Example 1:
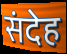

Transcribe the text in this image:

संदेह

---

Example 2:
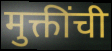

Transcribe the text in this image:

मुक्तींची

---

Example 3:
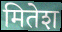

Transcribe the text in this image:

मितेश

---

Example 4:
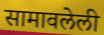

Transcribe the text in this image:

सामावलेली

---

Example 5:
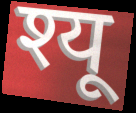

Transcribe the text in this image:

श्यू